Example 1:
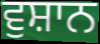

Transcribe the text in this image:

ਵੁਸ਼ਾਨ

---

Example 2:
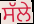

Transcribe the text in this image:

ਸੱਲੇ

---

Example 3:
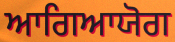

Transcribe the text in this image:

ਆਗਿਆਯੋਗ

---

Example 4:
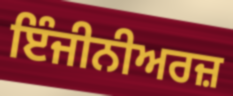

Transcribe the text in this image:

ਇੰਜੀਨੀਅਰਜ਼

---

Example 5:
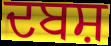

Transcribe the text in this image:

ਦਬਸ਼